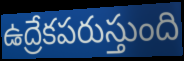
ఉద్రేకపరుస్తుంది